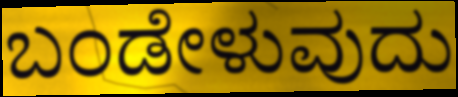
ಬಂಡೇಳುವುದು